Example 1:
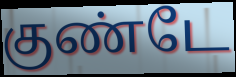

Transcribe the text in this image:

குண்டே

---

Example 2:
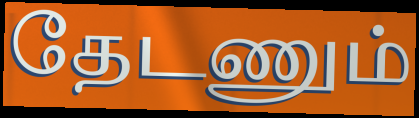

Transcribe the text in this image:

தேடணும்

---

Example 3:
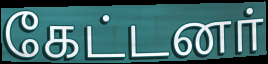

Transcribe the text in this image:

கேட்டனர்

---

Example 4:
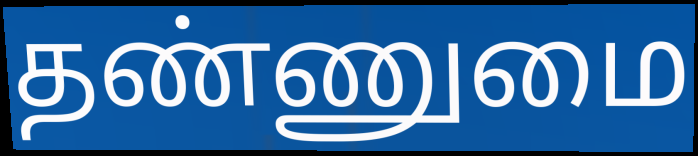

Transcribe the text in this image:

தண்ணுமை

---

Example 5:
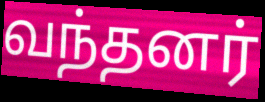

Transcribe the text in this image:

வந்தனர்